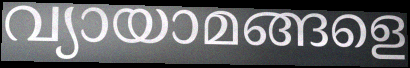
വ്യായാമങ്ങളെ